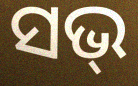
ସଭ୍